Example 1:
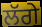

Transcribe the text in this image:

ਲੱਗੇ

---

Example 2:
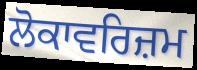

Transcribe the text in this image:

ਲੋਕਾਵਰਿਜ਼ਮ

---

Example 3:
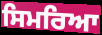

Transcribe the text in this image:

ਸਿਮਰਿਆ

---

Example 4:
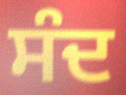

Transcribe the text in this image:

ਸੰਦ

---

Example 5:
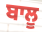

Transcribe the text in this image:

ਬਾਲੂ